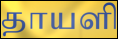
தாயளி